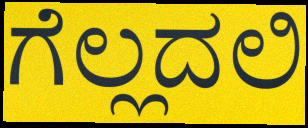
ಗೆಲ್ಲದಲಿ